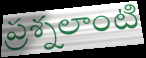
ప్రశ్నలాంటి